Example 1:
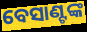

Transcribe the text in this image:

ବେସାଣ୍ଟଙ୍କ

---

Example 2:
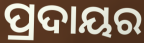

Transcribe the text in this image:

ପ୍ରଦାୟର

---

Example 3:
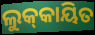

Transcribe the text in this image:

ଲୁକ୍‌କାୟିତ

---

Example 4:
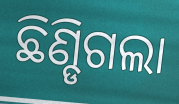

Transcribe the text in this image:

ଛିଣ୍ଡିଗଲା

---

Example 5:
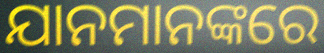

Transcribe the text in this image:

ଯାନମାନଙ୍କରେ